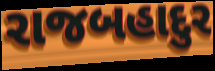
રાજબહાદુર